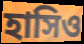
হাসিও